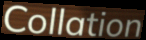
Collation